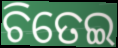
ଚିତେଇ